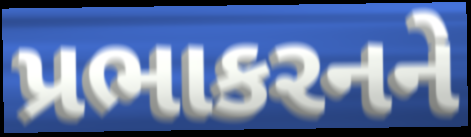
પ્રભાકરનને